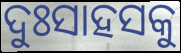
ଦୁଃସାହସକୁ